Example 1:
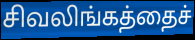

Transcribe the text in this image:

சிவலிங்கத்தைச்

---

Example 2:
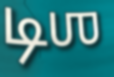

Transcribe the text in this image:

டிஶ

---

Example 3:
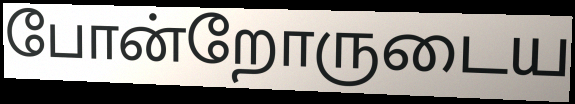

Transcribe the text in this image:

போன்றோருடைய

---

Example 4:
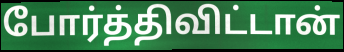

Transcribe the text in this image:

போர்த்திவிட்டான்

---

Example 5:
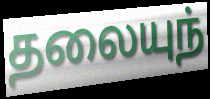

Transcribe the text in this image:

தலையுந்